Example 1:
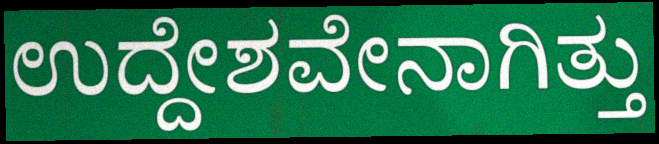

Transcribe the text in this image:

ಉದ್ದೇಶವೇನಾಗಿತ್ತು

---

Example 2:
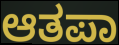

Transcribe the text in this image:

ಆತಪಾ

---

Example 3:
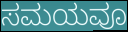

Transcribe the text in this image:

ಸಮಯವೂ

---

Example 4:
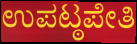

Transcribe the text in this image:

ಉಪಟ್ಠಪೇತಿ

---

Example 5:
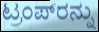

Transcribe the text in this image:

ಟ್ರಂಪ್‌ರನ್ನು